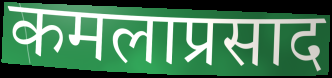
कमलाप्रसाद